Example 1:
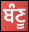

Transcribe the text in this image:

ਬੰਣੂ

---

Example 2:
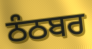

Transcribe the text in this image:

ਠੰਠਬਰ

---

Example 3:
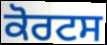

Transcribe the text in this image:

ਕੋਰਟਸ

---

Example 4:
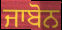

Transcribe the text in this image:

ਜਾਬੋਨ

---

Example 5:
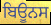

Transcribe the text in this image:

ਬਿਊਨਸ